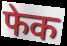
फेक